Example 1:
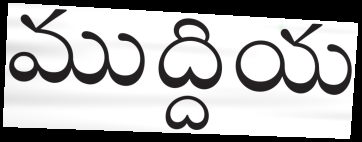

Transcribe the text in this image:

ముద్దియ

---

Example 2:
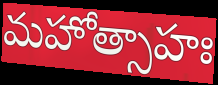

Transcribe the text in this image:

మహోత్సాహః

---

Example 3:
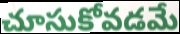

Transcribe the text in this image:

చూసుకోవడమే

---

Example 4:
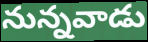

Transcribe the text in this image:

నున్నవాడు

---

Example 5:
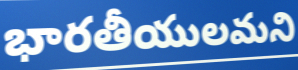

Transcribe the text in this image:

భారతీయులమని